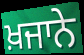
ਖ਼ਜਾਨੇ